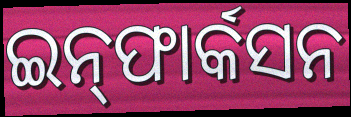
ଇନ୍‌ଫାର୍କସନ